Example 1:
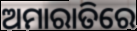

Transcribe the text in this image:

ଅମାରାତିରେ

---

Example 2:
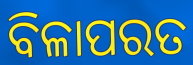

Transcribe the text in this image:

ବିଳାପରତ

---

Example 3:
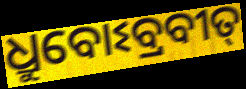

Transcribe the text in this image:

ଧ୍ରୁବୋଽବ୍ରବୀତ୍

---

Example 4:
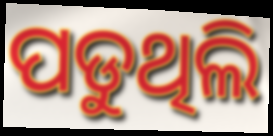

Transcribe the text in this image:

ପଡୁଥିଲି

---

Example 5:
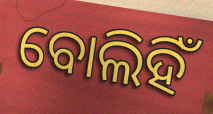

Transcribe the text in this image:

ବୋଲିହିଁ